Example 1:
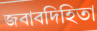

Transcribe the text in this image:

জবাবদিহিতা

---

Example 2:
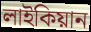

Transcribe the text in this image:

লাইকিয়ান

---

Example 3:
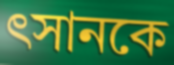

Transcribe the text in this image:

ৎসানকে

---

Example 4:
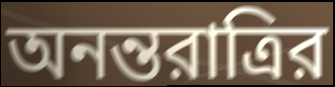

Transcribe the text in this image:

অনন্তরাত্রির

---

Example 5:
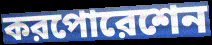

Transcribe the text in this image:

করপোরেশেন